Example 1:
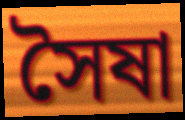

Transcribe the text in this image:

সৈষা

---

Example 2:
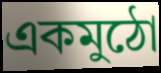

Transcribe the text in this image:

একমুঠো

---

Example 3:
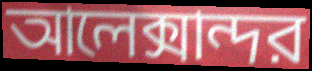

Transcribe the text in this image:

আলেক্সান্দর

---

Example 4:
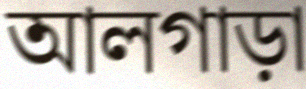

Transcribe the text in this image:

আলগাড়া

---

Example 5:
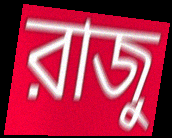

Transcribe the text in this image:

রাজু